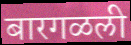
बारगळली